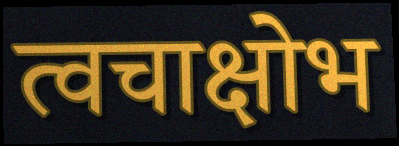
त्वचाक्षोभ